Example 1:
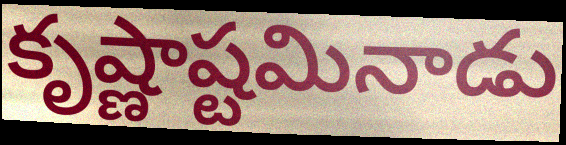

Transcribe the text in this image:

కృష్ణాష్టమినాడు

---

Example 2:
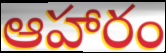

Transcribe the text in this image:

ఆహారం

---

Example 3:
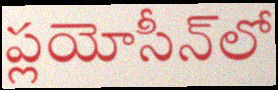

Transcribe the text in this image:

ప్లయోసీన్‌లో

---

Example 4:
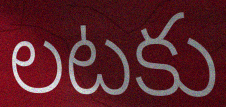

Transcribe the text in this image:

లటకు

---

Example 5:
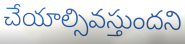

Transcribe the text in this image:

చేయాల్సివస్తుందని